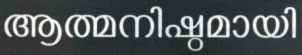
ആത്മനിഷ്ഠമായി